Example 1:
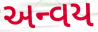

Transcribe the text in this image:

અન્વય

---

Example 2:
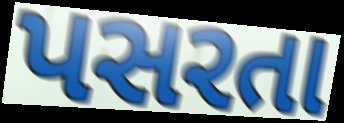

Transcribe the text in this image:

પસરતા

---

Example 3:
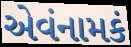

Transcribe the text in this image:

એવંનામકં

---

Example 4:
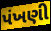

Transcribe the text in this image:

પંખણી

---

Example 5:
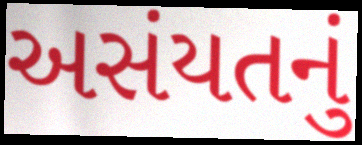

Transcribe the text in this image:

અસંયતનું